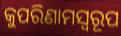
କୁପରିଣାମସ୍ୱରୂପ